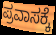
ಪ್ರವಾಸಕ್ಕೆ